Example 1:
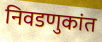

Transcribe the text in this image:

निवडणुकांत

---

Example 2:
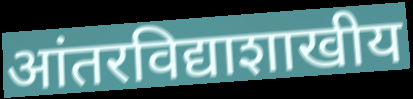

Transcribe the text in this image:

आंतरविद्याशाखीय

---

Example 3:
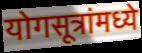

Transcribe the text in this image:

योगसूत्रांमध्ये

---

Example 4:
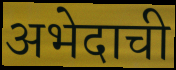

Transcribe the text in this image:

अभेदाची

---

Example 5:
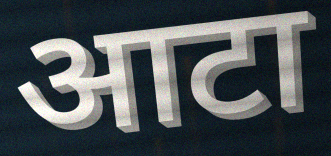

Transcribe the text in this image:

आटा